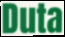
Duta